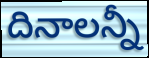
దినాలన్నీ